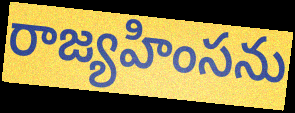
రాజ్యహింసను